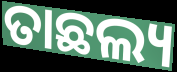
ତାଛଲ୍ୟ